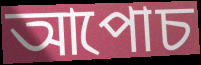
আপোচ